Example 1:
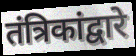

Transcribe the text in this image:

तंत्रिकांद्वारे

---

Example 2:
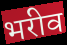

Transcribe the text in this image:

भरीव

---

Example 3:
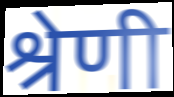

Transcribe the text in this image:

श्रेणी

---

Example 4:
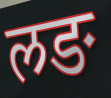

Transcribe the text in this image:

लङ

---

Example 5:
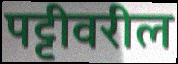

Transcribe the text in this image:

पट्टीवरील